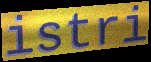
istri